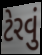
ટેરવું